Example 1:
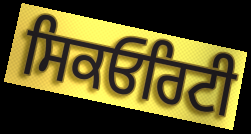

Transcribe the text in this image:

ਸਿਕਓਰਿਟੀ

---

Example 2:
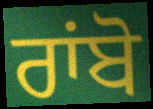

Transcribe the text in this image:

ਰਾਂਬੋ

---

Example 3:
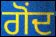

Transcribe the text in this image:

ਗੋਂਦ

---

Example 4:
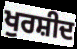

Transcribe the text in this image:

ਖੁਰਸ਼ੀਦ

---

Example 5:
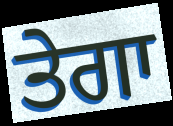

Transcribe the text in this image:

ਤੇਗਾ